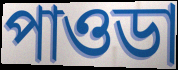
পাওডা